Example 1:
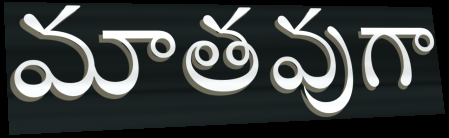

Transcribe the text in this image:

మాతవుగా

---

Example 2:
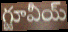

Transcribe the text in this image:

గ్జూవీయ్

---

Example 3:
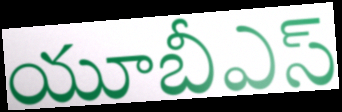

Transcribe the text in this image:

యూబీఎస్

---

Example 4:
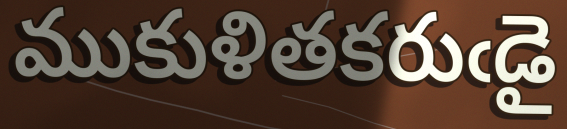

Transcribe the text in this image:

ముకుళితకరుఁడై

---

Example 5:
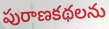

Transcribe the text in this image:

పురాణకథలను